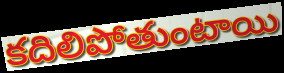
కదిలిపోతుంటాయి